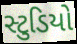
સ્ટુડિયો